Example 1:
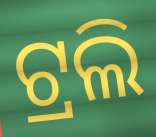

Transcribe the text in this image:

ଟ୍ରଲି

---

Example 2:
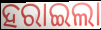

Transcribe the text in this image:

ହରାଇଲା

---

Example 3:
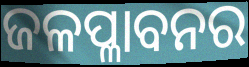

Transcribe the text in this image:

ଜଳପ୍ଳାବନର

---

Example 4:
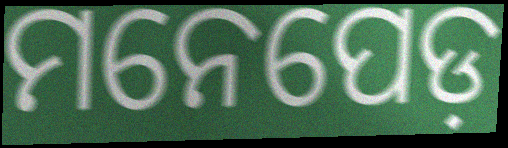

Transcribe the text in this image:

ମନେପେଡ଼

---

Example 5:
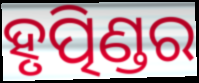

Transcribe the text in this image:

ହୃତ୍ପିଣ୍ଡର